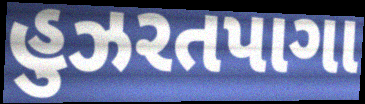
હુઝરતપાગા